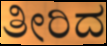
ತೀರಿದ